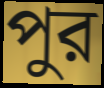
পুর